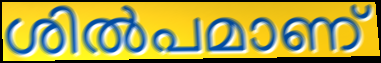
ശിൽപമാണ്